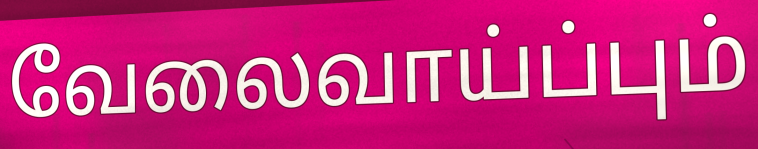
வேலைவாய்ப்பும்